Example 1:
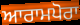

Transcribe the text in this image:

ਆਰਾਮਪੋਰਾ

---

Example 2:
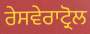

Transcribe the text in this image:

ਰੇਸਵੇਰਾਟ੍ਰੋਲ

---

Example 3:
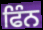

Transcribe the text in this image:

ਫਿੰਨ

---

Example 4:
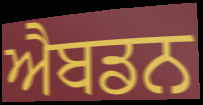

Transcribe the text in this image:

ਐਬਡਨ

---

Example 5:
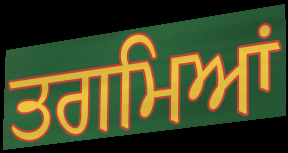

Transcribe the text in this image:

ਤਗਮਿਆਂ